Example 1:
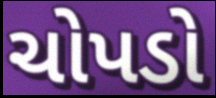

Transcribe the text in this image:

ચોપડો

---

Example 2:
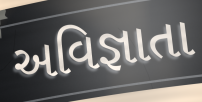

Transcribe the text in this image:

અવિજ્ઞાતા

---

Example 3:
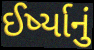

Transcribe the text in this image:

ઈર્ષ્યાનું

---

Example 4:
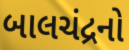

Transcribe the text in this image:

બાલચંદ્રનો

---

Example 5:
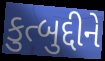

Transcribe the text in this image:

કુત્બુદ્દીને